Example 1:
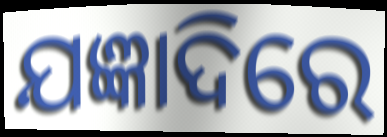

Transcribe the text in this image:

ଯଜ୍ଞାଦିରେ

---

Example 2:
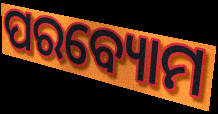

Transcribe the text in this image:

ପରବ୍ୟୋମ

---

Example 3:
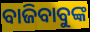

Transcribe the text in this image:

ବାଜିବାବୁଙ୍କ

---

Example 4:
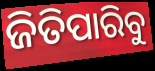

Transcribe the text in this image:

ଜିତିପାରିବୁ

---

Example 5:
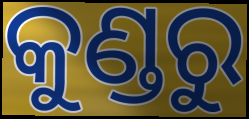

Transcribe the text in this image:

କୁଣ୍ଡରୁ